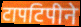
टापटिपीने